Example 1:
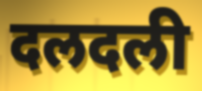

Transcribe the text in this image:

दलदली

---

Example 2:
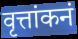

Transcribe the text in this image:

वृत्तांकनं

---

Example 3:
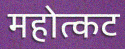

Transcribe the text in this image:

महोत्कट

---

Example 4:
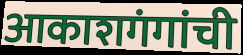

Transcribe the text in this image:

आकाशगंगांची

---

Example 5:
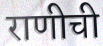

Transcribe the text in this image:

राणीची